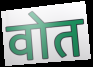
वोत